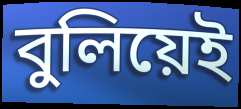
বুলিয়েই